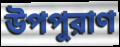
উপপুরাণ